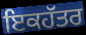
ਇਕਹੱਤਰ